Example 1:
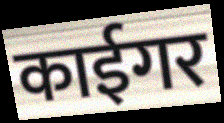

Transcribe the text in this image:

काईगर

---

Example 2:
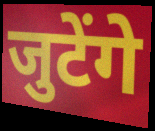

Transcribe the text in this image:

जुटेंगे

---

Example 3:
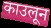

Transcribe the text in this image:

काउलून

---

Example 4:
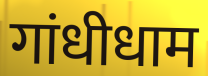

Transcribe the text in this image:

गांधीधाम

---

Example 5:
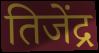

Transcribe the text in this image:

तिजेंद्र